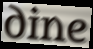
dine